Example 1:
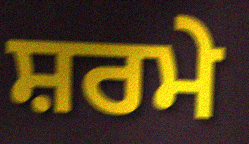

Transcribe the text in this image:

ਸ਼ਰਮੇ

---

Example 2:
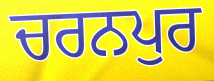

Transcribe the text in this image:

ਚਰਨਪੁਰ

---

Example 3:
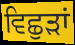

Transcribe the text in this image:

ਵਿਛੁੜਾਂ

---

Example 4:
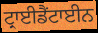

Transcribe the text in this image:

ਟ੍ਰਾਈਡੈਂਟਾਈਨ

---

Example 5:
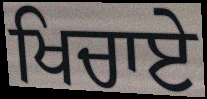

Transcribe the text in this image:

ਖਿਚਾਏ